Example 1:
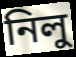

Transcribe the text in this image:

নিলু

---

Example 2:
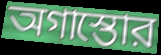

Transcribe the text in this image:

অগাস্তোর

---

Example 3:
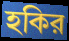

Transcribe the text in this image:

হকির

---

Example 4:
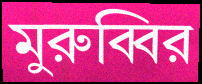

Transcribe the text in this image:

মুরুব্বির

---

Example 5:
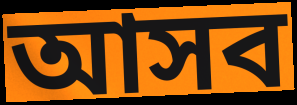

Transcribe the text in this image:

আসব